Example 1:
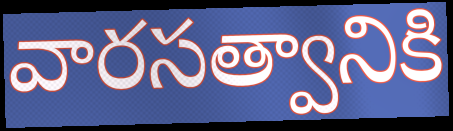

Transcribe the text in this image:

వారసత్వానికి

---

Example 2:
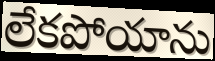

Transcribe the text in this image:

లేకపోయాను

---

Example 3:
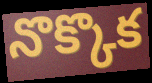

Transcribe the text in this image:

నొక్కొక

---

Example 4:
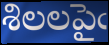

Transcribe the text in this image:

శిలలపైఁ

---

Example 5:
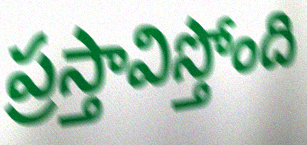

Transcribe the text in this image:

ప్రస్తావిస్తోంది